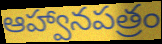
ఆహ్వానపత్రం